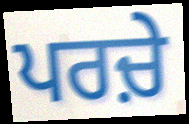
ਪਰਚ਼ੇ